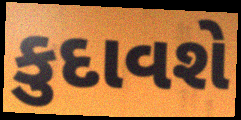
કુદાવશે